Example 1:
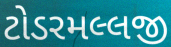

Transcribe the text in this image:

ટોડરમલ્લજી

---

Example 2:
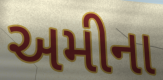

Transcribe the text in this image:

અમીના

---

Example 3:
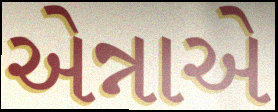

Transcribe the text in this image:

એન્નાએ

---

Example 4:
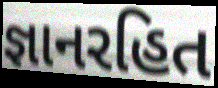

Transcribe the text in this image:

જ્ઞાનરહિત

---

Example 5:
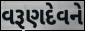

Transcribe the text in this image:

વરૂણદેવને